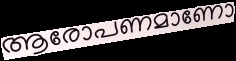
ആരോപണമാണോ